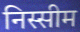
निस्सीम